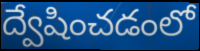
ద్వేషించడంలో